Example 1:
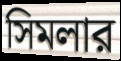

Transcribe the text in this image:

সিমলার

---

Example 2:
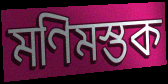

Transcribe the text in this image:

মণিমস্তক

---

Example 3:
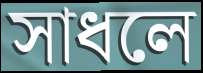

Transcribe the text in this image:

সাধলে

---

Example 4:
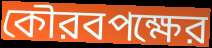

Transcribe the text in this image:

কৌরবপক্ষের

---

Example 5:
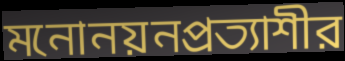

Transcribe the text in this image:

মনোনয়নপ্রত্যাশীর